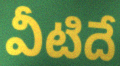
వీటిదే